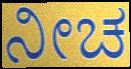
ನೀಚ